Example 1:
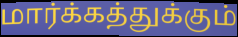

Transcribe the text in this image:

மார்க்கத்துக்கும்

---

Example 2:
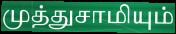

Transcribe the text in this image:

முத்துசாமியும்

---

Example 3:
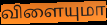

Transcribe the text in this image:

விளையுமா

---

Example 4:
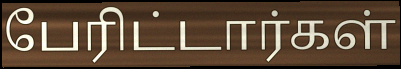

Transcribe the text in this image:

பேரிட்டார்கள்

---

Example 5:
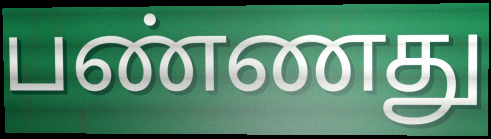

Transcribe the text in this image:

பண்ணது